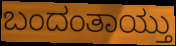
ಬಂದಂತಾಯ್ತು